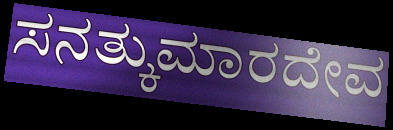
ಸನತ್ಕುಮಾರದೇವ